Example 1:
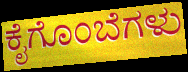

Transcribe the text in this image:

ಕೈಗೊಂಬೆಗಳು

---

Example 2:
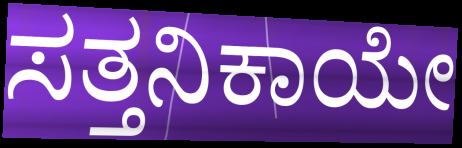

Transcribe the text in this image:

ಸತ್ತನಿಕಾಯೇ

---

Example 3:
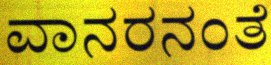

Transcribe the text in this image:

ವಾನರನಂತೆ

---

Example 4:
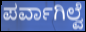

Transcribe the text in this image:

ಪರ್ವಾಗಿಲ್ವೆ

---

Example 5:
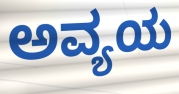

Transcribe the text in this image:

ಅವ್ಯಯ